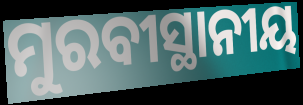
ମୁରବୀସ୍ଥାନୀୟ